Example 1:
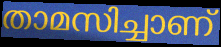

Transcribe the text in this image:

താമസിച്ചാണ്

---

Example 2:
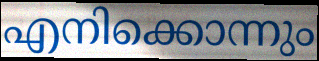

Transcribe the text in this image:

എനിക്കൊന്നും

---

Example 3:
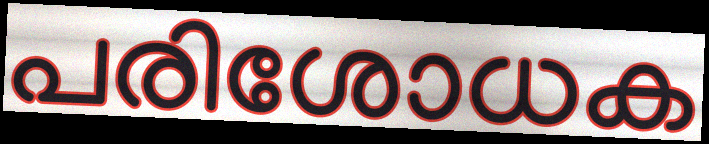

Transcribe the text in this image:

പരിശോധക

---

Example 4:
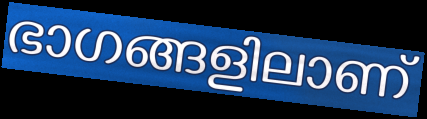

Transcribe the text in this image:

ഭാഗങ്ങളിലാണ്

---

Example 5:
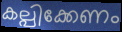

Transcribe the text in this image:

കല്പിക്കേണം